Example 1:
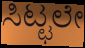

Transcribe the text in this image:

ಸಿಟ್ಟಲೇ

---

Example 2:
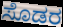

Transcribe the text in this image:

ಸೊಡರ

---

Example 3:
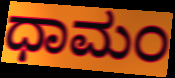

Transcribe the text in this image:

ಧಾಮಂ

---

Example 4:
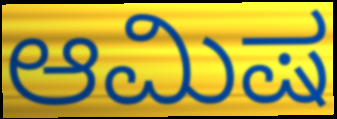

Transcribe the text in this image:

ಆಮಿಷ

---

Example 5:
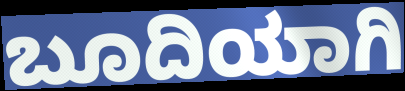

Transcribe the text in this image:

ಬೂದಿಯಾಗಿ